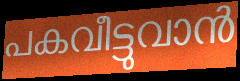
പകവീട്ടുവാൻ